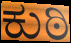
ಕುಠಿ